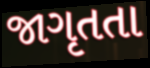
જાગૃતતા